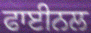
ਫਾਈਨਲ